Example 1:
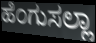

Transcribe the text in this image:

ಹೆಂಗುಸಲ್ಲಾ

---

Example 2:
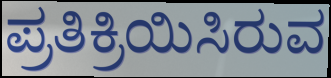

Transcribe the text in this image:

ಪ್ರತಿಕ್ರಿಯಿಸಿರುವ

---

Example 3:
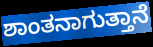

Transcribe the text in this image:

ಶಾಂತನಾಗುತ್ತಾನೆ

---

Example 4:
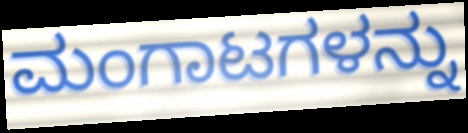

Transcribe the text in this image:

ಮಂಗಾಟಗಳನ್ನು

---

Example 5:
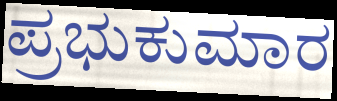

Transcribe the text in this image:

ಪ್ರಭುಕುಮಾರ